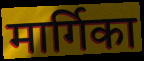
मार्गिका